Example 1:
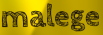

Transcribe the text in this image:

malege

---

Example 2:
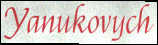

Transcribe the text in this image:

Yanukovych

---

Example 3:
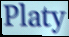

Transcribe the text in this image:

Platy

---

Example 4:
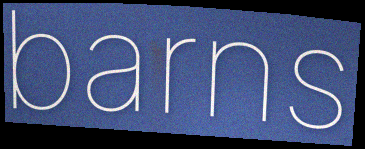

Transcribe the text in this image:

barns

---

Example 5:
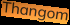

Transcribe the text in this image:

Thangom